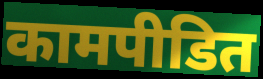
कामपीडित